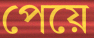
পেয়ে